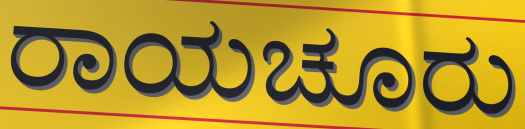
ರಾಯಚೂರು